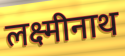
लक्ष्मीनाथ